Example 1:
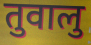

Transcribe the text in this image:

तुवालु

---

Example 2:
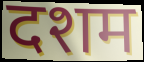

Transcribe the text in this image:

दशम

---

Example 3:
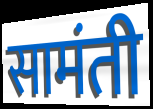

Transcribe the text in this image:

सामंती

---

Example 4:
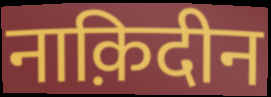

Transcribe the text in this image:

नाक़िदीन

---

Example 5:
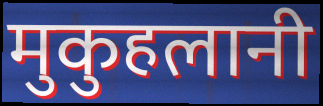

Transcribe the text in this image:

मुकुहलानी